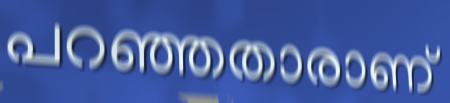
പറഞ്ഞതാരാണ്